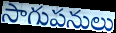
సాగుపనులు